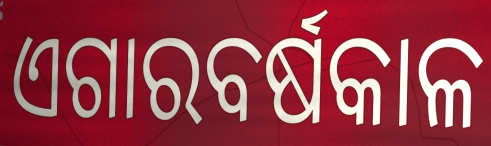
ଏଗାରବର୍ଷକାଳ